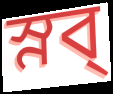
স্নব্